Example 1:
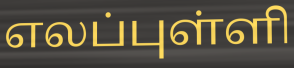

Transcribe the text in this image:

எலப்புள்ளி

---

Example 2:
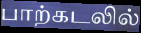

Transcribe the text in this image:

பாற்கடலில்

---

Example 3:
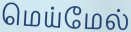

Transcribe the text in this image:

மெய்மேல்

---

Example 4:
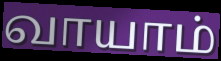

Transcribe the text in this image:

வாயாம்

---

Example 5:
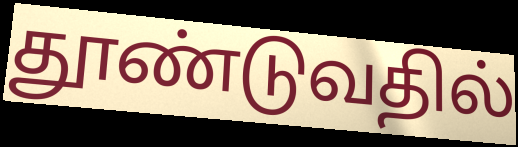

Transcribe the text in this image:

தூண்டுவதில்